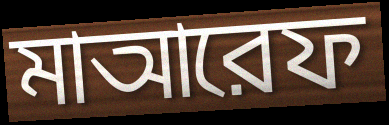
মাআরেফ